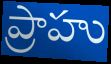
ప్రాహు